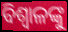
ବିଶ୍ୱାଳଙ୍କୁ